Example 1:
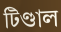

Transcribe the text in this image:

টিণ্ডাল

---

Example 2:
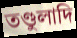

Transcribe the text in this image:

তণ্ডুলাদি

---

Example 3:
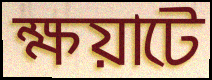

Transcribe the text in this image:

ক্ষয়াটে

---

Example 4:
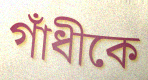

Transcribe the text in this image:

গাঁধীকে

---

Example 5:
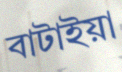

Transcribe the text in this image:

বাটাইয়া